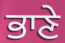
ਭਾਣੇ